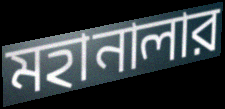
মহানালার